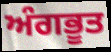
ਅੰਗਭੂਤ